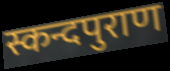
स्कन्दपुराण